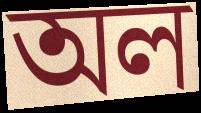
অল